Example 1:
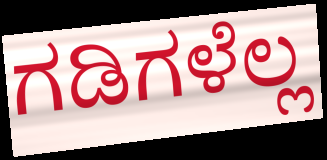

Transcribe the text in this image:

ಗಡಿಗಳೆಲ್ಲ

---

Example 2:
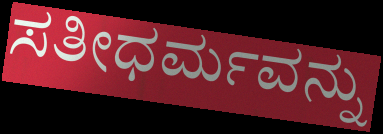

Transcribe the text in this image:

ಸತೀಧರ್ಮವನ್ನು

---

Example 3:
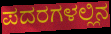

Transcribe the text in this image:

ಪದರಗಳಲ್ಲಿನ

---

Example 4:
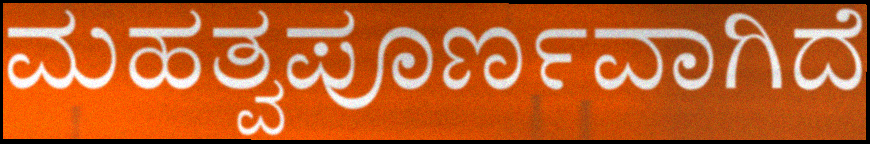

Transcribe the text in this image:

ಮಹತ್ವಪೂರ್ಣವಾಗಿದೆ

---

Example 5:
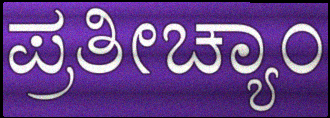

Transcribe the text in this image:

ಪ್ರತೀಚ್ಯಾಂ